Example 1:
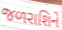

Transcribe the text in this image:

જળરાશિને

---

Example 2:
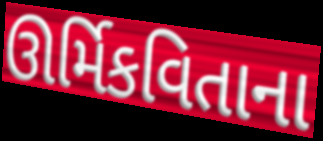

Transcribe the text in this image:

ઊર્મિકવિતાના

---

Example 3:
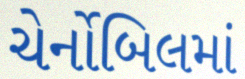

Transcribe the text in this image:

ચેર્નોબિલમાં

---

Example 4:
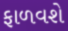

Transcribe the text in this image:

ફાળવશે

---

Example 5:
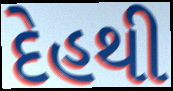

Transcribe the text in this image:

દેહથી